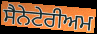
ਸੈਨੇਟੇਰੀਅਮ